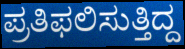
ಪ್ರತಿಫಲಿಸುತ್ತಿದ್ದ